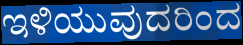
ಇಳಿಯುವುದರಿಂದ